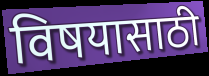
विषयासाठी